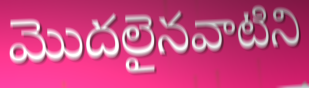
మొదలైనవాటిని